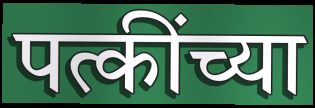
पत्कींच्या